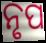
ନୃପ